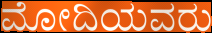
ಮೋದಿಯವರು